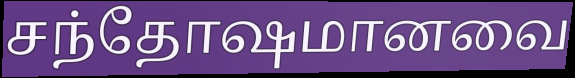
சந்தோஷமானவை